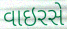
વાઇરસે